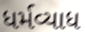
ધર્મવ્યાધ